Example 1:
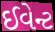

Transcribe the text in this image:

ઈવેન્ટ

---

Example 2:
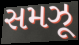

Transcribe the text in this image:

સમઝૂ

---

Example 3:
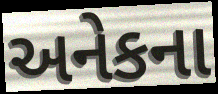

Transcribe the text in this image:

અનેકના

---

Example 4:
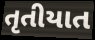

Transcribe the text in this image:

તૃતીયાત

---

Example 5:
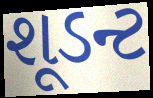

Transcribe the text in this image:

શૂડન્ટ